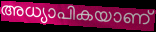
അധ്യാപികയാണ്